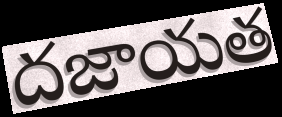
దజాయత